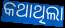
କଥାଥିଲା